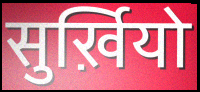
सुर्ख़ियो